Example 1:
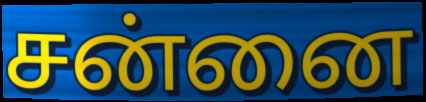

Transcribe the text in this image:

சன்னை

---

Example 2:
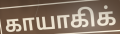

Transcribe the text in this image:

காயாகிக்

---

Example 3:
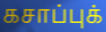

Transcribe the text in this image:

கசாப்புக்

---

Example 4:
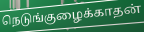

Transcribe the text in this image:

நெடுங்குழைக்காதன்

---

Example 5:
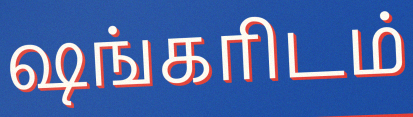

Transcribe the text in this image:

ஷங்கரிடம்